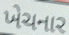
ખેચનાર